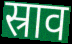
स्राव